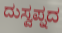
ದುಸ್ವಪ್ನದ